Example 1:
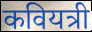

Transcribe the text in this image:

कवियत्री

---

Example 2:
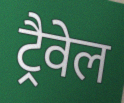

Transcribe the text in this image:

ट्रैवेल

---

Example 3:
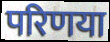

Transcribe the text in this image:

परिणया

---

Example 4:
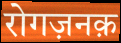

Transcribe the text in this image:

रोगज़नक़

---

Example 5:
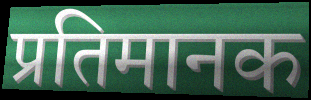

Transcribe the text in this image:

प्रतिमानक